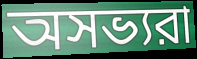
অসভ্যরা